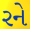
રને